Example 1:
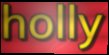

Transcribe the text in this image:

holly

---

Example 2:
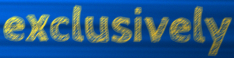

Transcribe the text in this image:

exclusively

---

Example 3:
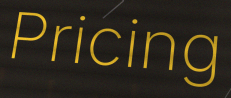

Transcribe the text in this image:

Pricing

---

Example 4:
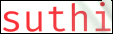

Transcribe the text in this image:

suthi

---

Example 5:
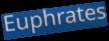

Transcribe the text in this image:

Euphrates